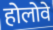
होलोवे